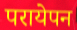
परायेपन